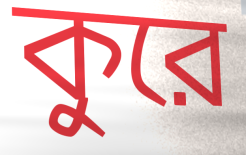
কুরে